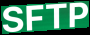
SFTP